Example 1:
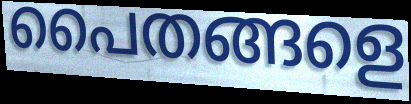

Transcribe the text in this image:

പൈതങ്ങളെ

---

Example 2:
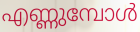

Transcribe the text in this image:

എണ്ണുമ്പോൾ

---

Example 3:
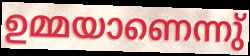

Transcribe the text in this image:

ഉമ്മയാണെന്നു്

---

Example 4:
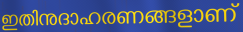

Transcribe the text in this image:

ഇതിനുദാഹരണങ്ങളാണ്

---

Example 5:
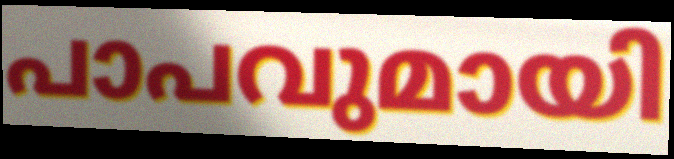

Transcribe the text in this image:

പാപവുമായി